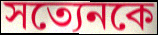
সত্যেনকে